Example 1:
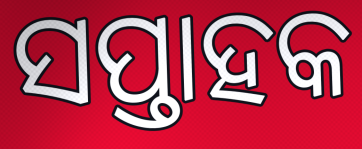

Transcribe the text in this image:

ସପ୍ତାହକ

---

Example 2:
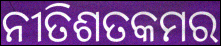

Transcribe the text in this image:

ନୀତିଶତକମର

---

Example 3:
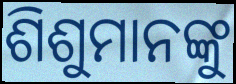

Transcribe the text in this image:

ଶିଶୁମାନଙ୍କୁ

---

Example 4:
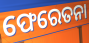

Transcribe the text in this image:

ଫେରେତନା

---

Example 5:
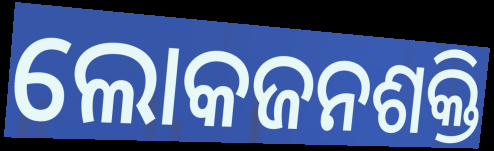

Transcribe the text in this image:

ଲୋକଜନଶକ୍ତି